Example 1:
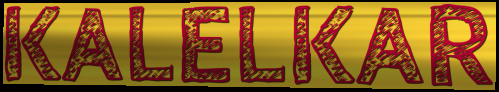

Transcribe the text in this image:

KALELKAR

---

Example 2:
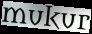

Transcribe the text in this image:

mukur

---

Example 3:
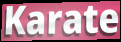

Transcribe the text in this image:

Karate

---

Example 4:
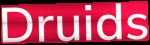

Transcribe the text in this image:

Druids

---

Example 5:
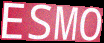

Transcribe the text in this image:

ESMO